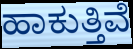
ಹಾಕುತ್ತಿವೆ